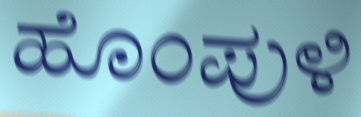
ಹೊಂಪುಳಿ